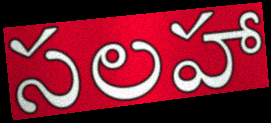
సలహా